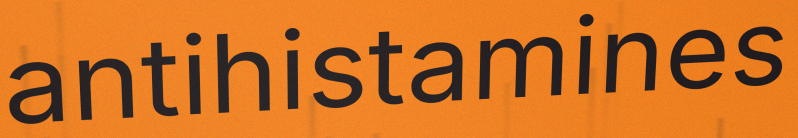
antihistamines